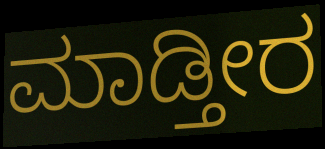
ಮಾಡ್ತೀರ